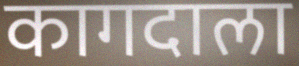
कागदाला